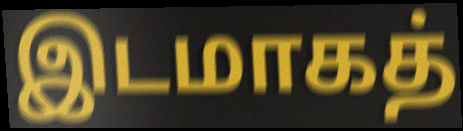
இடமாகத்